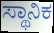
ಸ್ಥಾನಿಕ